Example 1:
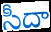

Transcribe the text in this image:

సీదా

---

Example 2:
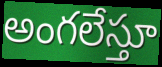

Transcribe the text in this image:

అంగలేస్తూ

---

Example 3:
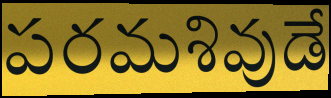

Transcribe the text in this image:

పరమశివుడే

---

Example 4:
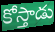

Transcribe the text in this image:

కోస్తాడు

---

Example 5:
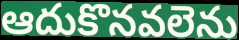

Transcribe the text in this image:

ఆదుకొనవలెను